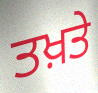
ਤਖ਼ਤੇ